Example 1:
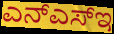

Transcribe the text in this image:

ಎನ್ಎಸ್ಇ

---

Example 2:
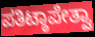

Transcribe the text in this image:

ಪತಿಟ್ಠಾಪೇತ್ವಾ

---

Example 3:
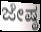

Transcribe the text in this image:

ಜೇಷ್ಠ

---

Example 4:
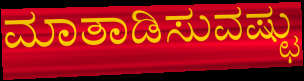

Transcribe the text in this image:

ಮಾತಾಡಿಸುವಷ್ಟು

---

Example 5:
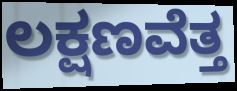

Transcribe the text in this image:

ಲಕ್ಷಣವೆತ್ತ